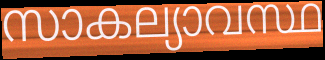
സാകല്യാവസ്ഥ